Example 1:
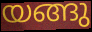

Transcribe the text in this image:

യങ്ങു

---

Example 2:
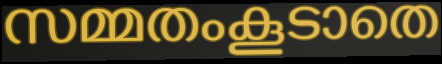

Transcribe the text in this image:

സമ്മതംകൂടാതെ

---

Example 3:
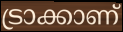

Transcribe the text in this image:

ട്രാക്കാണ്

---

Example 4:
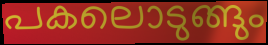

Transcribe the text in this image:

പകലൊടുങ്ങും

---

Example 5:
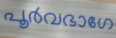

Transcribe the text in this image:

പൂർവഭാഗേ